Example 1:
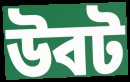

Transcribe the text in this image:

উবট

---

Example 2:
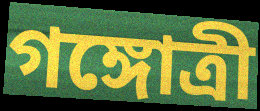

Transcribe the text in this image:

গঙ্গোত্রী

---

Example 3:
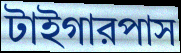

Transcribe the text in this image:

টাইগারপাস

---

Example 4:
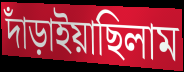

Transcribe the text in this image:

দাঁড়াইয়াছিলাম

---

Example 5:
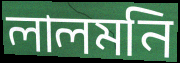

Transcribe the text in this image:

লালমনি